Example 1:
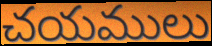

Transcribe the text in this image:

చయములు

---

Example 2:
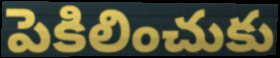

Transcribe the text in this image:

పెకిలించుకు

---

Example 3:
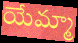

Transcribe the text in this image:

యేమ్మా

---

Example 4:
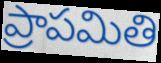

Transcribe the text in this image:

ప్రాపమితి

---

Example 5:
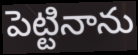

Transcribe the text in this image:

పెట్టినాను